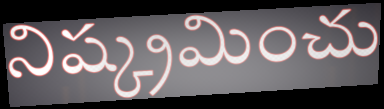
నిష్క్రమించు